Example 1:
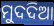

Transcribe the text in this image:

ମୁଦଦିଆ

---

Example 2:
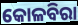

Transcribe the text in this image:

କୋଳବିରା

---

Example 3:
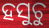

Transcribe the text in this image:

ହସୁଚୁ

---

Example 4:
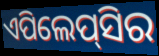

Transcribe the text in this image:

ଏପିଲେପ୍‌ସିର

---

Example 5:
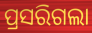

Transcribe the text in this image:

ପ୍ରସରିଗଲା